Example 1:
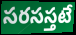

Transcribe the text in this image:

సరసస్తటే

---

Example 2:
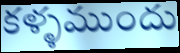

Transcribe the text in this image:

కళ్ళముందు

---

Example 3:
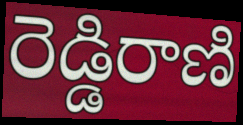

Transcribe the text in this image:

రెడ్డిరాణి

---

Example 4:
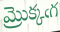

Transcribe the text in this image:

మ్రొక్కఁగ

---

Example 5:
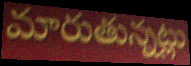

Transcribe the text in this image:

మారుతున్నట్లు